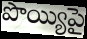
పొయ్యిపై